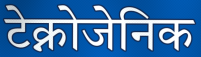
टेक्नोजेनिक